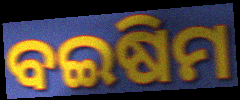
ବଇଷିମ